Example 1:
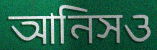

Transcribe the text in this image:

আনিসও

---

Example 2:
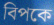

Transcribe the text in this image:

বিপকে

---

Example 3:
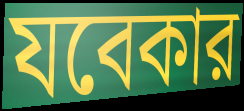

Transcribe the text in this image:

যবেকার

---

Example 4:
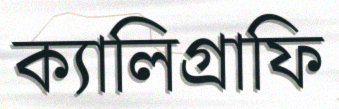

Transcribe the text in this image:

ক্যালিগ্রাফি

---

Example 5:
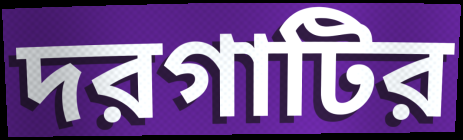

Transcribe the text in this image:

দরগাটির